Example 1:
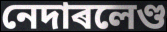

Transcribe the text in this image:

নেদাৰলেণ্ড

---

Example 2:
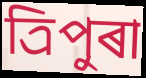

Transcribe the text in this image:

ত্ৰিপুৰা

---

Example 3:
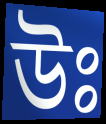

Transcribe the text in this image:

উঃ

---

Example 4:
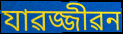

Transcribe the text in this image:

যাৱজ্জীৱন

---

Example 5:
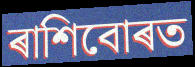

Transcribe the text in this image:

ৰাশিবোৰত